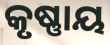
କୃଷ୍ଣାୟ